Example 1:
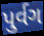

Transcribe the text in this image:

પુર્વગ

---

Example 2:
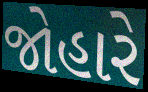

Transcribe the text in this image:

જોહારે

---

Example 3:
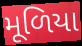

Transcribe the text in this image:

મૂળિયા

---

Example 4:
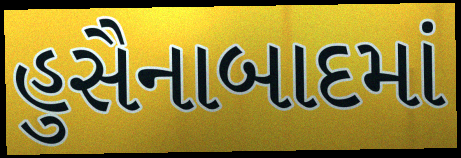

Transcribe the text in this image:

હુસૈનાબાદમાં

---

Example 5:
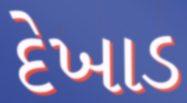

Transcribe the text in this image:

દેખાડ